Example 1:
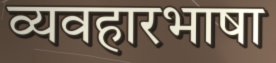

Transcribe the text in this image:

व्यवहारभाषा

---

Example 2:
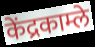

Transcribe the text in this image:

केंद्रकाम्ले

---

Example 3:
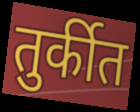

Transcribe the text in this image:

तुर्कीत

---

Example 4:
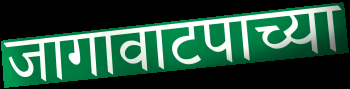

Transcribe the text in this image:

जागावाटपाच्या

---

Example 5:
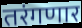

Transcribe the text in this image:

तरंगणार